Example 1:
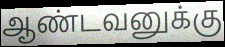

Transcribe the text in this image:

ஆண்டவனுக்கு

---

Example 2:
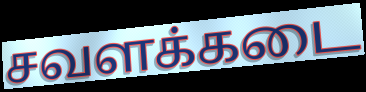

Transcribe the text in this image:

சவளக்கடை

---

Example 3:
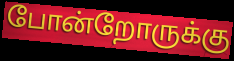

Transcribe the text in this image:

போன்றோருக்கு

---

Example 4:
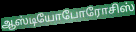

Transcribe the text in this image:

ஆஸ்டியோபோரோசிஸ்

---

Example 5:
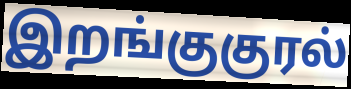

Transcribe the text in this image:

இறங்குகுரல்